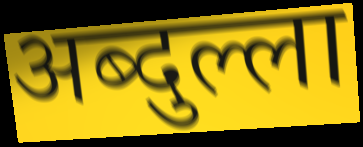
अब्दुल्ला